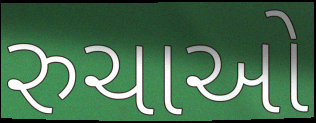
રુચાઓ